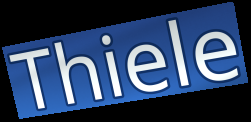
Thiele